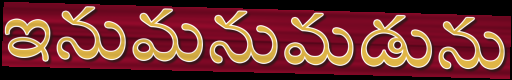
ఇనుమనుమడును